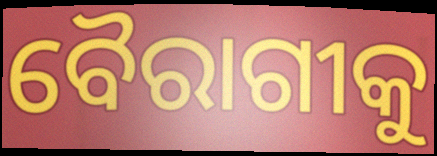
ବୈରାଗୀକୁ